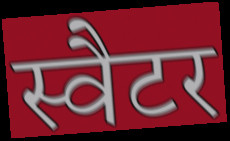
स्वैटर